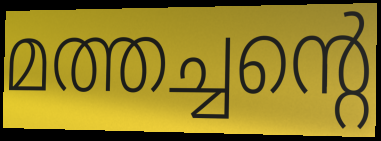
മത്തച്ചന്റെ